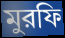
মুরফি